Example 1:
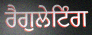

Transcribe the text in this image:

ਰੈਗੁਲੇਟਿੰਗ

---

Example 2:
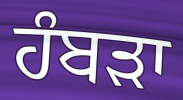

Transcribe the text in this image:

ਹੰਬਡ਼ਾ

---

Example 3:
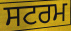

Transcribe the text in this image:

ਸਟਰਮ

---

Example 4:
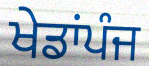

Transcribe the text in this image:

ਖੇਡਾਂਪੰਜ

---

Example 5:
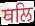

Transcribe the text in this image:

ਥਲਿ